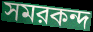
সমরকন্দ